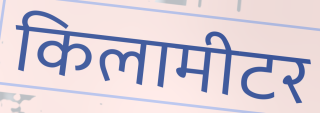
किलामीटर